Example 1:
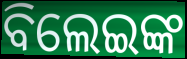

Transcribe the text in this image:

ବିଲେଇଙ୍କ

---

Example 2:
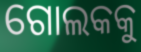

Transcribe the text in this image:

ଗୋଲକକୁ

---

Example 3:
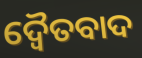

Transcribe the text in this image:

ଦ୍ୱୈତବାଦ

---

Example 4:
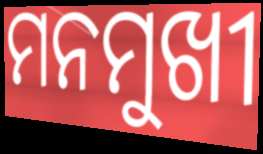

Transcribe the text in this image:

ମନମୁଖୀ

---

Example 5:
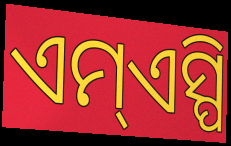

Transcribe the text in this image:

ଏମ୍ଏସ୍ପି